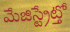
మేజిస్ట్రేట్తో